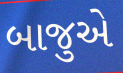
બાજુએ